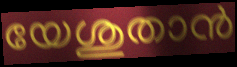
യേശുതാൻ